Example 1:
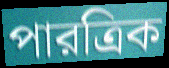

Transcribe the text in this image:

পারত্রিক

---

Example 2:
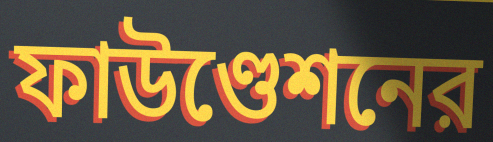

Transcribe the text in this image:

ফাউণ্ডেশনের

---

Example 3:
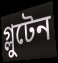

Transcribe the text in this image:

গ্লুটেন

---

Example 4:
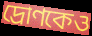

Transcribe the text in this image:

দ্রোণকেও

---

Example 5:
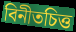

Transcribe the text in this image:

বিনীতচিত্ত